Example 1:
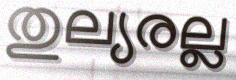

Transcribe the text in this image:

തുല്യരല്ല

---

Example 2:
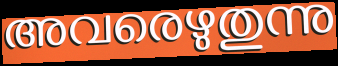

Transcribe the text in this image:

അവരെഴുതുന്നു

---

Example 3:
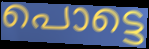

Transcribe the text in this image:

പൊട്ടെ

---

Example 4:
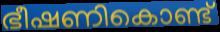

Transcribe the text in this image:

ഭീഷണികൊണ്ട്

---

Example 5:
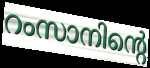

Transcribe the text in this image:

റംസാനിന്റെ